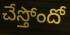
చేస్తోందో